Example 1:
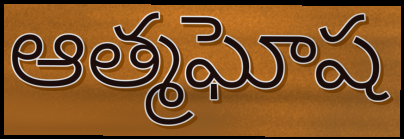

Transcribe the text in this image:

ఆత్మఘోష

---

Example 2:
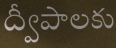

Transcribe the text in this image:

ద్వీపాలకు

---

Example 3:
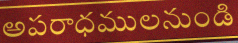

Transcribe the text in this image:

అపరాధములనుండి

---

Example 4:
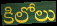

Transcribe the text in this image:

కిలోలు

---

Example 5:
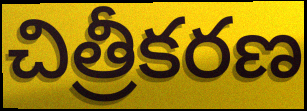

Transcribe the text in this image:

చిత్రీకరణ